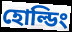
হোল্ডিং